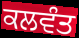
ਕਲਵੰਤ